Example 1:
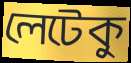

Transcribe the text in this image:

লেটেকু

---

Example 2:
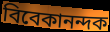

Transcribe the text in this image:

বিবেকানন্দক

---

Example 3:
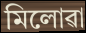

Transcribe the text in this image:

মিলোৱা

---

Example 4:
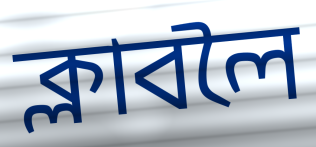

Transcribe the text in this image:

ক্লাবলৈ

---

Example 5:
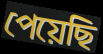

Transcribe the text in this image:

পেয়েছি